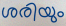
ശരിയും